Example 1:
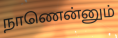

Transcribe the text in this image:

நாணென்னும்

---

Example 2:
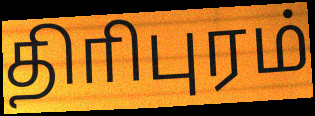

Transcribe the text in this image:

திரிபுரம்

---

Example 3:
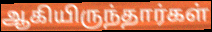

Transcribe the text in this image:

ஆகியிருந்தார்கள்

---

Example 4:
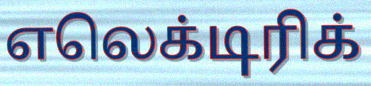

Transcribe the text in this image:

எலெக்டிரிக்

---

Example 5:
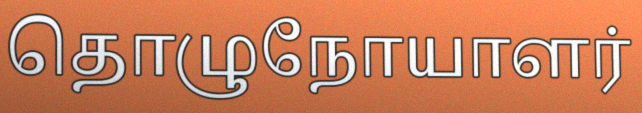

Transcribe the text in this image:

தொழுநோயாளர்